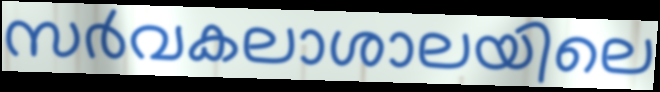
സർവകലാശാലയിലെ